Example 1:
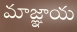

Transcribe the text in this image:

మాజ్ఞాయ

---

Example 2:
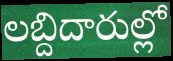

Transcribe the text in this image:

లబ్దిదారుల్లో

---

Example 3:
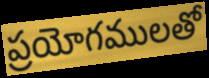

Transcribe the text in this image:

ప్రయోగములతో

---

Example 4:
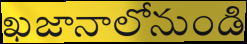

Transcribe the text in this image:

ఖజానాలోనుండి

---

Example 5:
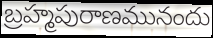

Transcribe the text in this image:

బ్రహ్మపురాణమునందు